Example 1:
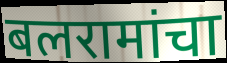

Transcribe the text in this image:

बलरामांचा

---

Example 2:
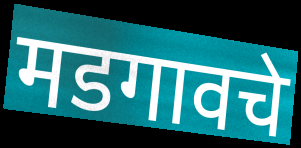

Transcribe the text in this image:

मडगावचे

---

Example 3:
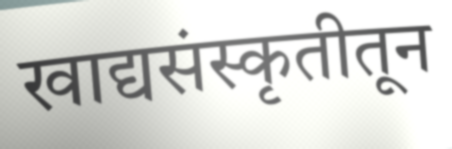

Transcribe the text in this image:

खाद्यसंस्कृतीतून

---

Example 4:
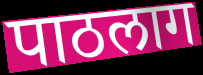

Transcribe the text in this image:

पाठलाग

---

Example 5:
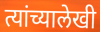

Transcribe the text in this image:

त्यांच्यालेखी